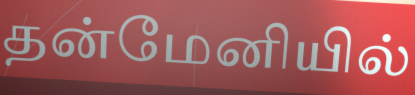
தன்மேனியில்